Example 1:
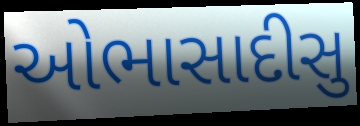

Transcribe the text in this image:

ઓભાસાદીસુ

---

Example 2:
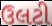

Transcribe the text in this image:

ઉલટી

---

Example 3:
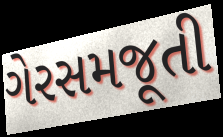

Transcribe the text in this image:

ગેરસમજૂતી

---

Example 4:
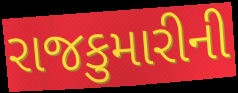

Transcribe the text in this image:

રાજકુમારીની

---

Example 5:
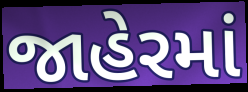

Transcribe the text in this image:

જાહેરમાં